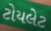
ટોયલેટ